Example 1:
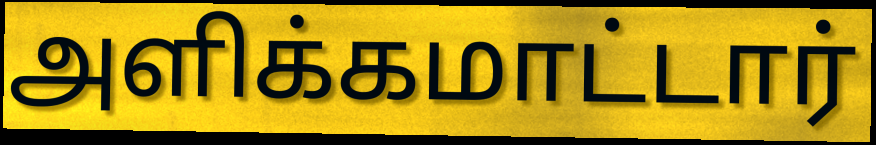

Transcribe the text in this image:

அளிக்கமாட்டார்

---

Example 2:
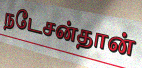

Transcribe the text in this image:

நடேசன்தான்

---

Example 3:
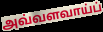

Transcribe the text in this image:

அவ்வளவாய்ப்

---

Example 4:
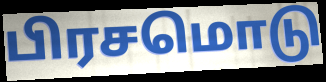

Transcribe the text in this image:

பிரசமொடு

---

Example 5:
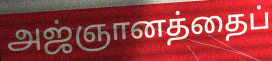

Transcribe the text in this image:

அஜ்ஞானத்தைப்